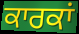
ਕਾਰਕਾਂ